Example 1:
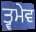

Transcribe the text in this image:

ਤ੍ਵਮੇਵ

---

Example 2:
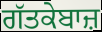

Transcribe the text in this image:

ਗੱਤਕੇਬਾਜ਼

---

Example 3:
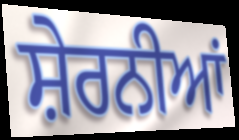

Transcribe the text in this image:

ਸ਼ੇਰਨੀਆਂ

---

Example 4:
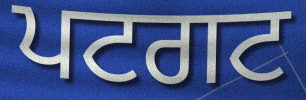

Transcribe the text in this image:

ਪਟਗਟ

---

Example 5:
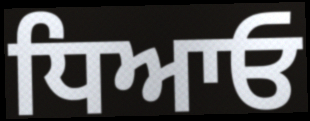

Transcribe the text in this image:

ਧਿਆਓ